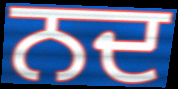
ਨਦ